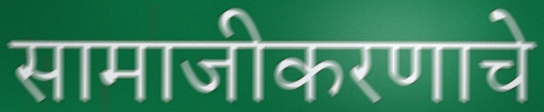
सामाजीकरणाचे